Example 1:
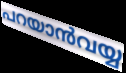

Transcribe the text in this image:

പറയാൻവയ്യ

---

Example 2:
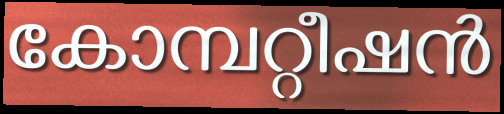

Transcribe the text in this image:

കോമ്പറ്റീഷൻ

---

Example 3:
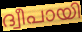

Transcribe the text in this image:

ദ്വീപായി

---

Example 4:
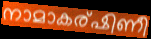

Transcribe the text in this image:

നാമാകര്ഷിണീ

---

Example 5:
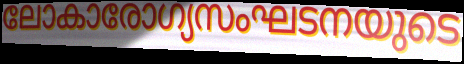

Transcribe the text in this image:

ലോകാരോഗ്യസംഘടനയുടെ